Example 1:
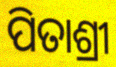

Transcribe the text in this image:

ପିତାଶ୍ରୀ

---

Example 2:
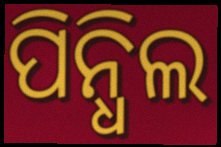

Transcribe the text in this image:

ପିନ୍ଧିଲ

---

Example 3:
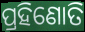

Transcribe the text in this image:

ପ୍ରହିଣୋତି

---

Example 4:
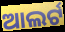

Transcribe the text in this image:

ଆଲର୍ଟ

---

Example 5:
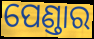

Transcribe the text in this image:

ପେଣ୍ଡାର